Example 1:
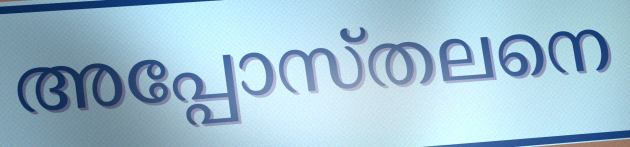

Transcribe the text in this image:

അപ്പോസ്തലനെ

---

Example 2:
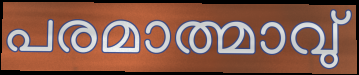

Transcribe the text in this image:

പരമാത്മാവു്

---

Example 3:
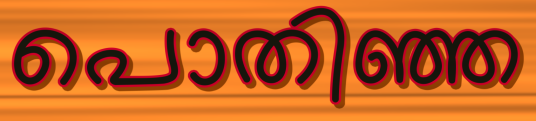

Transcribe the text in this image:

പൊതിഞ്ഞ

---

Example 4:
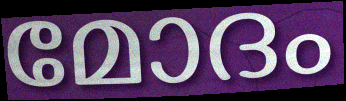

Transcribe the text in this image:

മോദം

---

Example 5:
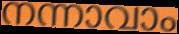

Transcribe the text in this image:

നന്നാവാം